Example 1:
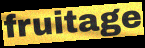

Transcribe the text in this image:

fruitage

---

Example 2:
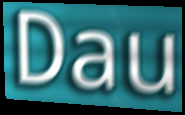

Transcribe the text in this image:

Dau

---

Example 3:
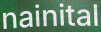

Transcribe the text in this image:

nainital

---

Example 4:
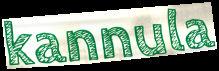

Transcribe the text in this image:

kannula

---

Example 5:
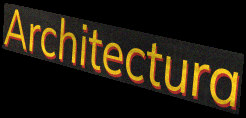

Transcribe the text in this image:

Architectura